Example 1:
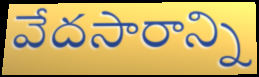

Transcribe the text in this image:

వేదసారాన్ని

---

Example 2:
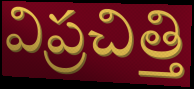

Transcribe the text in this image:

విప్రచిత్తి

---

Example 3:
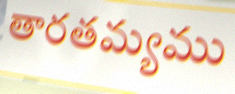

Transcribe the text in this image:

తారతమ్యము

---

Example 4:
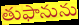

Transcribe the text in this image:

తుఫానును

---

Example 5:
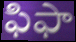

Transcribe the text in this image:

ఫిఫా